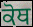
ਕੋਥ